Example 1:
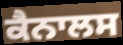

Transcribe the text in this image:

ਕੈਨਾਲਸ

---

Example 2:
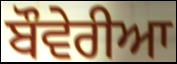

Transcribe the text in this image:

ਬੌਵੇਰੀਆ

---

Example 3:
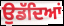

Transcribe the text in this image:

ਉਡੱਦਿਆਂ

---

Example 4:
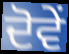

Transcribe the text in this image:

ਦੋਵੇਂ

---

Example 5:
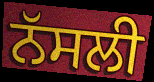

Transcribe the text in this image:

ਨੱਸਲੀ